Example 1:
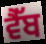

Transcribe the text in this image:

ਵੈੱਬ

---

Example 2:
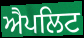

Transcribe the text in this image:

ਐਪਲਿਟ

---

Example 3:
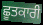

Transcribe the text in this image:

ਛੂਤਕਾਰੀ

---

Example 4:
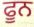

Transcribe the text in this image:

ਫੂਨ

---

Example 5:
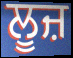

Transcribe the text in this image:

ਲੂਜ਼